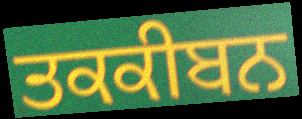
ਤਕਕੀਬਨ